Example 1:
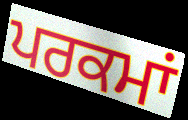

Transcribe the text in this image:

ਪਰਕਮਾਂ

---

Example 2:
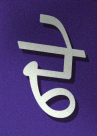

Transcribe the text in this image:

ਢੇ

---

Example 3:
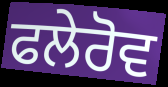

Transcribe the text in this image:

ਫਲੇਰੋਵ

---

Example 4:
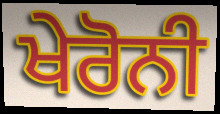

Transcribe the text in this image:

ਖੇਰੋਨੀ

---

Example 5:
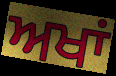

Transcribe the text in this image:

ਅਖਾਂ